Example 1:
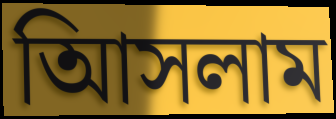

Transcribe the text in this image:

আিসলাম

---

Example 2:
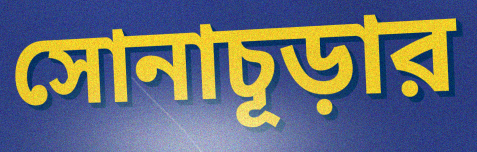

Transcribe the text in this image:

সোনাচূড়ার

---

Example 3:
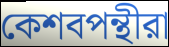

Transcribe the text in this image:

কেশবপন্থীরা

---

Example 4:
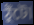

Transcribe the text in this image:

ঠুঁটো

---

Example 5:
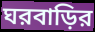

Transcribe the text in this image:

ঘরবাড়ির